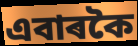
এবাৰকৈ